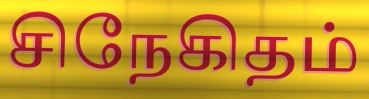
சிநேகிதம்